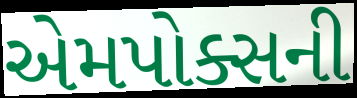
એમપોક્સની